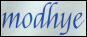
modhye